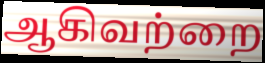
ஆகிவற்றை